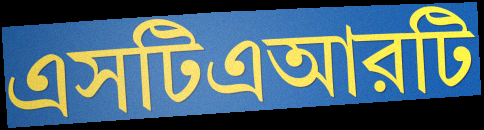
এসটিএআরটি